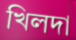
খিলদা